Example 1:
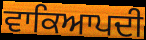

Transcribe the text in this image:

ਵਾਕਿਆਪਦੀ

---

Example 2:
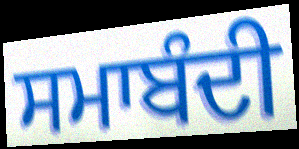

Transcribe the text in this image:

ਸਮਾਬੰਦੀ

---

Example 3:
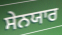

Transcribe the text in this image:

ਸੇਨਯਾਰ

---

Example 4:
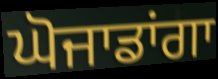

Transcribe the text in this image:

ਘੋਜਾਡਾਂਗਾ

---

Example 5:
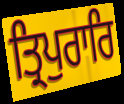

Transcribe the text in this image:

ਤ੍ਰਿਪੁਰਾਰਿ